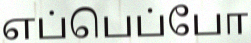
எப்பெப்போ